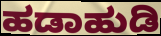
ಹಡಾಹುಡಿ